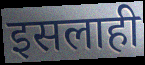
इसलाही